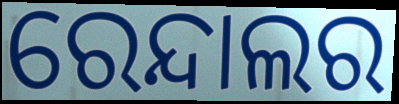
ରେନ୍ଦାଲର